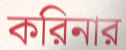
করিনার